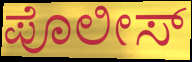
ಪೊಲೀಸ್